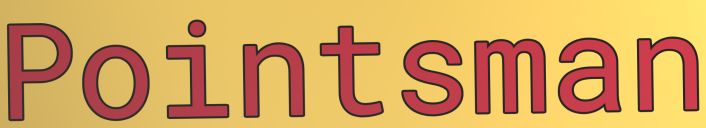
Pointsman